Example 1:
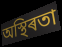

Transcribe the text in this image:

অস্থিৰতা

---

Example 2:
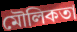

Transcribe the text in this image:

মৌলিকতা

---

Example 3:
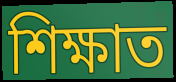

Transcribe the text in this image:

শিক্ষাত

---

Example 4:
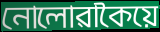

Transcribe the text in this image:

নোলোৱাকৈয়ে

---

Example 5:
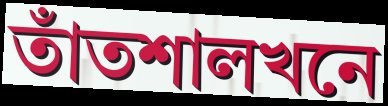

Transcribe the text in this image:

তাঁতশালখনে